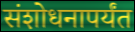
संशोधनापर्यंत